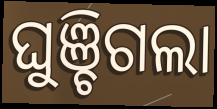
ଘୁଞ୍ଚିଗଲା